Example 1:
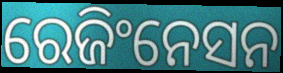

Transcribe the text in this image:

ରେଜିଂନେସନ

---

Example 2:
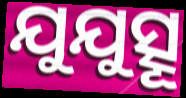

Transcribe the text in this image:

ଯୁଯୁତ୍ସୂ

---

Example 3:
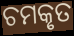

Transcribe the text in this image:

ଚମକୃତ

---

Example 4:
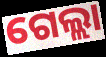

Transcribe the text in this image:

ଗେଲ୍ଲା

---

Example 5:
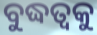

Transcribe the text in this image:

ବୁଦ୍ଧତ୍ଵକୁ